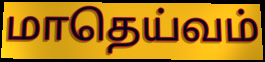
மாதெய்வம்